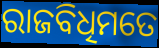
ରାଜବିଧିମତେ